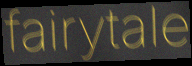
fairytale